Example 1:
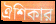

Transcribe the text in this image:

ঐশিকার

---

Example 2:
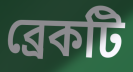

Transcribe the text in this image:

ব্রেকটি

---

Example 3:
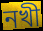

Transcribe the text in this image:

নখী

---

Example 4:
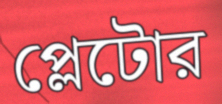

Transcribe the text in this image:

প্লেটোর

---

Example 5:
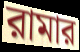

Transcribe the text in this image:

রামার